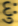
દુઃ